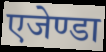
एजेण्डा